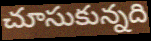
చూసుకున్నది